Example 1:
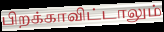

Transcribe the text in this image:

பிறக்காவிட்டாலும்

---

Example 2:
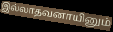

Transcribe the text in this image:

இல்லாதவனாயினும்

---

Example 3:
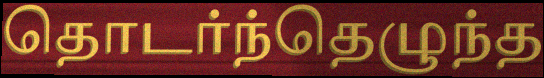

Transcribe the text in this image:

தொடர்ந்தெழுந்த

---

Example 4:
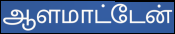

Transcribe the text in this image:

ஆளமாட்டேன்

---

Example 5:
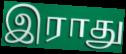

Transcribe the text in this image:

இராது